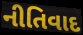
નીતિવાદ